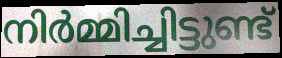
നിർമ്മിച്ചിട്ടുണ്ട്